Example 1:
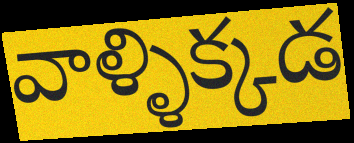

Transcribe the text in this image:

వాళ్ళిక్కడ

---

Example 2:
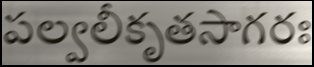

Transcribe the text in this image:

పల్వలీకృతసాగరః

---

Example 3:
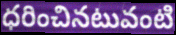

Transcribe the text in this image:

ధరించినటువంటి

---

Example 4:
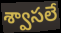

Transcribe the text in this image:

శ్వాసలే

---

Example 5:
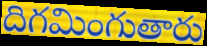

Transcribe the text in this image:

దిగమింగుతారు